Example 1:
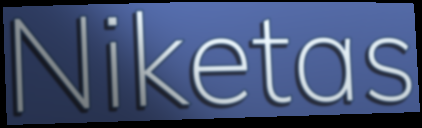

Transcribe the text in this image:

Niketas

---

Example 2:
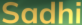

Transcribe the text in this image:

Sadhi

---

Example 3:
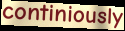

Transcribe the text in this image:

continiously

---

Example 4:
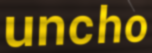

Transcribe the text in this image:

uncho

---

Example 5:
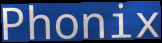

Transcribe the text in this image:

Phonix